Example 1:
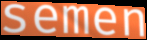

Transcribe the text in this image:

semen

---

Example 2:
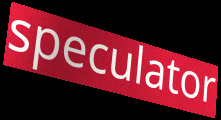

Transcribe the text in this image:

speculator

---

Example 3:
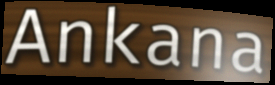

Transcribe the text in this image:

Ankana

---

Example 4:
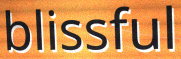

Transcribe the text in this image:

blissful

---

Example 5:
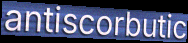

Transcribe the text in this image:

antiscorbutic